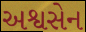
અશ્વસેન